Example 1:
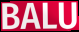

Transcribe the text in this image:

BALU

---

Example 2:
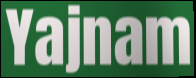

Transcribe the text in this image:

Yajnam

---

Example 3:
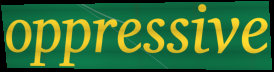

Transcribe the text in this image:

oppressive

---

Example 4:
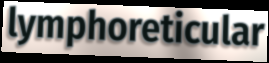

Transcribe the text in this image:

lymphoreticular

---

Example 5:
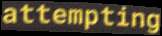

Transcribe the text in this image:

attempting